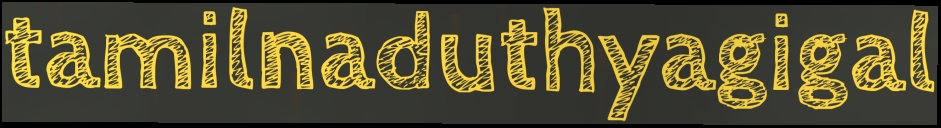
tamilnaduthyagigal